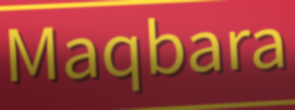
Maqbara